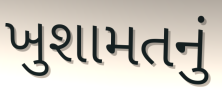
ખુશામતનું